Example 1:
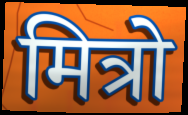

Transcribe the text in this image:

मित्रो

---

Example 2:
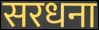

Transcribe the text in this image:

सरधना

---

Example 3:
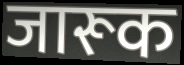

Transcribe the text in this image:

जारूक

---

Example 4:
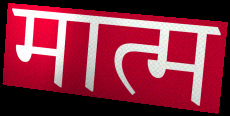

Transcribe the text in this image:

मात्म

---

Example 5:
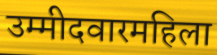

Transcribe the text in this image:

उम्मीदवारमहिला